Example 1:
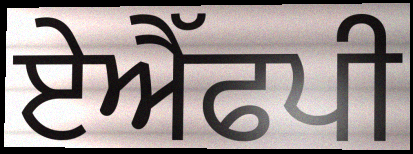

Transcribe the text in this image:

ਏਐੱਫਪੀ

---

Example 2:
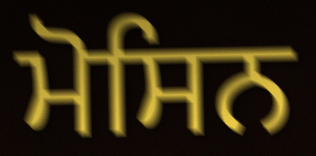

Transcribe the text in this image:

ਮੋਸਿਨ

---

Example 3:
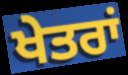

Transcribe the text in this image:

ਖੇਤਰਾਂ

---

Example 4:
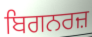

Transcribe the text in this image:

ਬਿਗਨਰਜ਼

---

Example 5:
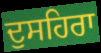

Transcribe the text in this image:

ਦੁਸਹਿਰਾ